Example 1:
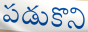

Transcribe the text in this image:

పడుకొని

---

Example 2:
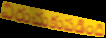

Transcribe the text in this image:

విరుచుకుపడింది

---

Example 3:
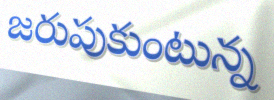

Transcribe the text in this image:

జరుపుకుంటున్న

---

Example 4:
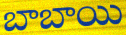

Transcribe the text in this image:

బాబాయి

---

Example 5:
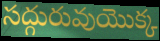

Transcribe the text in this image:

సద్గురువుయొక్క